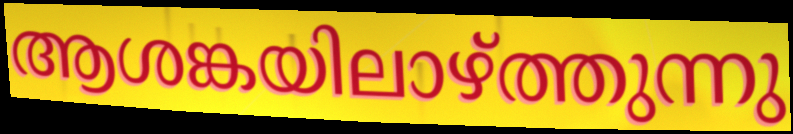
ആശങ്കയിലാഴ്ത്തുന്നു